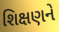
શિક્ષણને